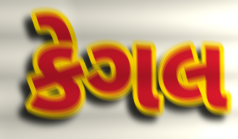
કેગલ